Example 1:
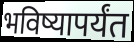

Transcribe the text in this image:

भविष्यापर्यंत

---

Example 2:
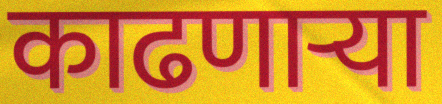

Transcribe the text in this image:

काढणार्‍या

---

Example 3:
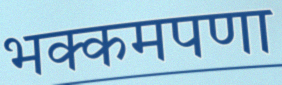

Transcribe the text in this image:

भक्कमपणा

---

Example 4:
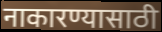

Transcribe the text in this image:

नाकारण्यासाठी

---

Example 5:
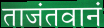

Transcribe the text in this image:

ताजंतवानं